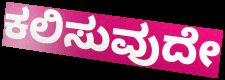
ಕಲಿಸುವುದೇ